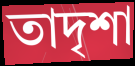
তাদৃশা